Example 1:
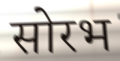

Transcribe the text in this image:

सोरभ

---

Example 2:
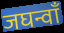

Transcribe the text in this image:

जघन्वाँ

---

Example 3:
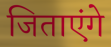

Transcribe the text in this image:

जिताएंगे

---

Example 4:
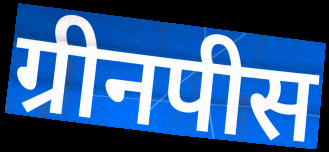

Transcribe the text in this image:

ग्रीनपीस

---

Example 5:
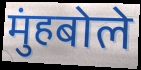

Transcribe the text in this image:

मुंहबोले